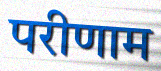
परीणाम